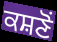
ਕਸ਼ਣੋਂ